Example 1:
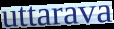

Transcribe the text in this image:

uttarava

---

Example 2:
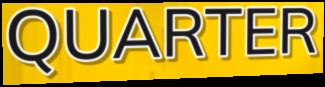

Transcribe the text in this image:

QUARTER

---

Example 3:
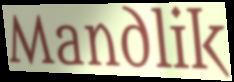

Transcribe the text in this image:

Mandlik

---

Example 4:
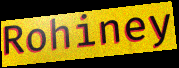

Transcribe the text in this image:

Rohiney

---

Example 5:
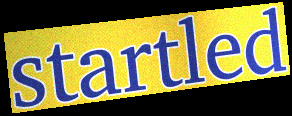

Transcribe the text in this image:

startled